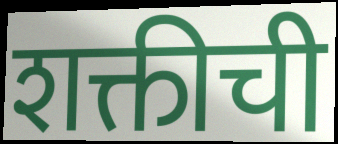
शक्तीची